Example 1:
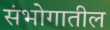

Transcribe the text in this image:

संभोगातील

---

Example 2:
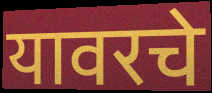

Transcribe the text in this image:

यावरचे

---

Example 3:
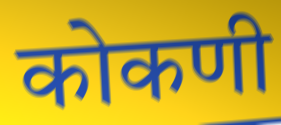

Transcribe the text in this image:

कोकणी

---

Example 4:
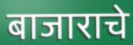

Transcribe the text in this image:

बाजाराचे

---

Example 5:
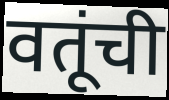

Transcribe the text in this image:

वतूंची